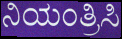
ನಿಯಂತ್ರಿಸಿ